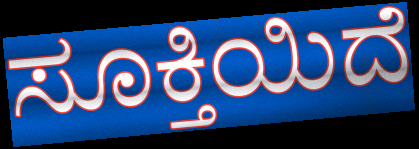
ಸೂಕ್ತಿಯಿದೆ